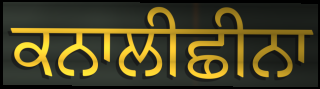
ਕਨਾਲੀਛੀਨਾ